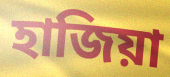
হাজিয়া